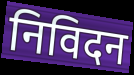
निविदन